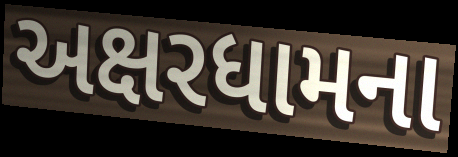
અક્ષરધામના